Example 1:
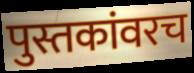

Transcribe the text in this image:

पुस्तकांवरच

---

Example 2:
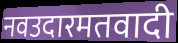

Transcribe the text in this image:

नवउदारमतवादी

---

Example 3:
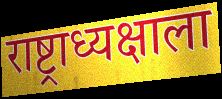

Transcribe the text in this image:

राष्ट्राध्यक्षाला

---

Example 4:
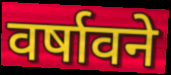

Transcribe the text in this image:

वर्षावने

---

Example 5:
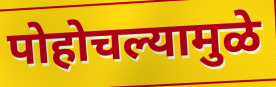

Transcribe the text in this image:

पोहोचल्यामुळे